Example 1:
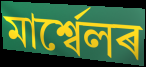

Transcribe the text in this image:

মাৰ্শ্বেলৰ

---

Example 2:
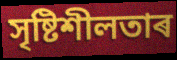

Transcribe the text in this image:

সৃষ্টিশীলতাৰ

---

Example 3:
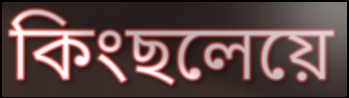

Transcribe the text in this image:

কিংছলেয়ে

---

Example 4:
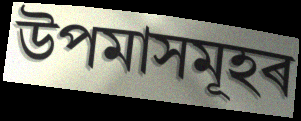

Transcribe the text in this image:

উপমাসমূহৰ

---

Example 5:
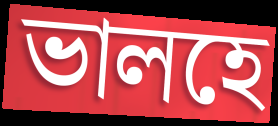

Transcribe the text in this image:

ভালহে